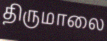
திருமாலை